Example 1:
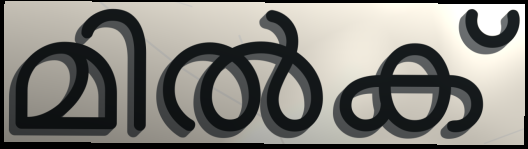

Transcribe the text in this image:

മിൽക്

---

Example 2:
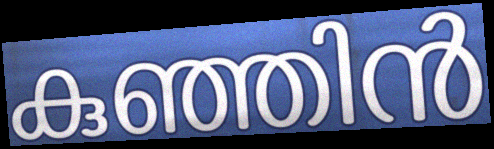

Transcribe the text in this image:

കുഞ്ഞിൻ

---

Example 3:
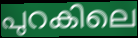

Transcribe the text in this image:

പുറകിലെ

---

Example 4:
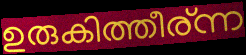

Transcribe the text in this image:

ഉരുകിത്തീര്ന്ന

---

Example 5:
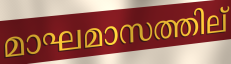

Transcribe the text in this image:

മാഘമാസത്തില്